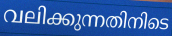
വലിക്കുന്നതിനിടെ